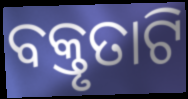
ବକ୍ତୃତାଟି